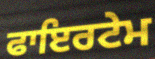
ਫਾਇਰਟੇਮ